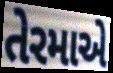
તેરમાએ